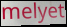
melyet